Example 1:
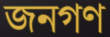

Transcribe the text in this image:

জনগণ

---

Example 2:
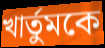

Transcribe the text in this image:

খার্তুমকে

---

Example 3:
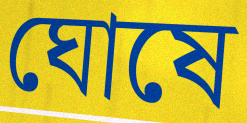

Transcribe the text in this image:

ঘোষে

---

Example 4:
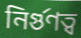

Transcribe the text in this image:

নির্গুণত্ব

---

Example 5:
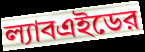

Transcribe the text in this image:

ল্যাবএইডের